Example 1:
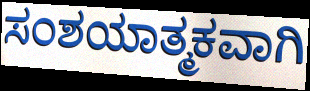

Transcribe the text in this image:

ಸಂಶಯಾತ್ಮಕವಾಗಿ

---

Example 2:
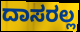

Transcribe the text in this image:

ದಾಸರಲ್ಲ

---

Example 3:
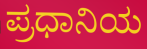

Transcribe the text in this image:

ಪ್ರಧಾನಿಯ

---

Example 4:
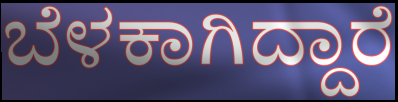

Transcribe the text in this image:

ಬೆಳಕಾಗಿದ್ದಾರೆ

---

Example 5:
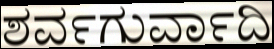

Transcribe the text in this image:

ಶರ್ವಗುರ್ವಾದಿ